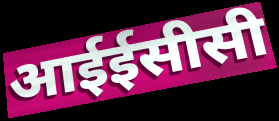
आईईसीसी